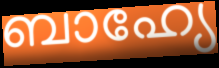
ബാഹ്യേ